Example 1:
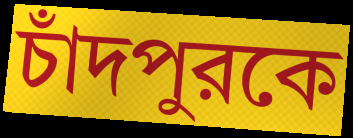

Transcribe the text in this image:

চাঁদপুরকে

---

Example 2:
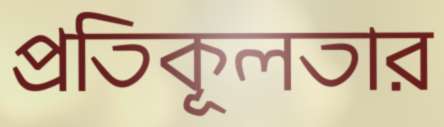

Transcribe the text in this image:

প্রতিকূলতার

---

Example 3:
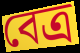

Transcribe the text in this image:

বেত্র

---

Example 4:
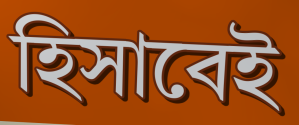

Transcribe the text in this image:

হিসাবেই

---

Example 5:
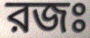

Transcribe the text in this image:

রজঃ